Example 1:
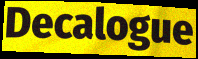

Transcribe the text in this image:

Decalogue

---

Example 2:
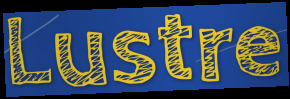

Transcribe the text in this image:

Lustre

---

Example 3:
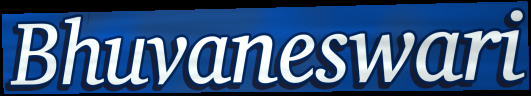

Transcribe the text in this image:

Bhuvaneswari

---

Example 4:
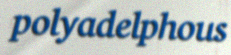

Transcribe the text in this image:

polyadelphous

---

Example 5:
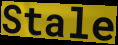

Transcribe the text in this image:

Stale